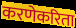
करणेकरिता